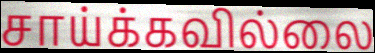
சாய்க்கவில்லை